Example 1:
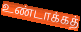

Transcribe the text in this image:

உண்டாக்கத்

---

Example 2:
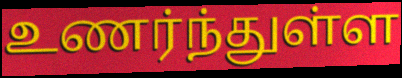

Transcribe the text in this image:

உணர்ந்துள்ள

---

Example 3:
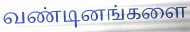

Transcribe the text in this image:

வண்டினங்களை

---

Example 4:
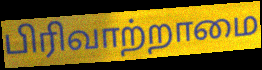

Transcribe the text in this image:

பிரிவாற்றாமை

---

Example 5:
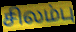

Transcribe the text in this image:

சிலம்பு